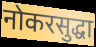
नोकरसुद्धा